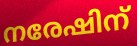
നരേഷിന്